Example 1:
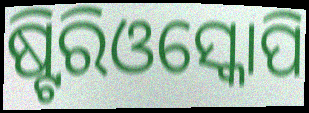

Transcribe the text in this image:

ଷ୍ଟିରିଓସ୍କୋପି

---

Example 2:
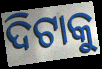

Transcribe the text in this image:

ଦିଟାକୁ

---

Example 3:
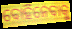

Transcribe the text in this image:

ବୋହିନେବାକୁ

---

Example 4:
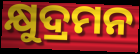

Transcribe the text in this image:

କ୍ଷୁଦ୍ରମନ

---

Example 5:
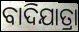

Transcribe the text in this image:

ବାଦିଯାତ୍ରା